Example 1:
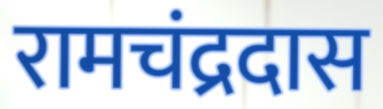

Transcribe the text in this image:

रामचंद्रदास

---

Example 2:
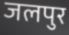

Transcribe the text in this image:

जलपुर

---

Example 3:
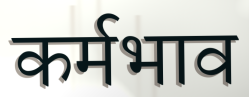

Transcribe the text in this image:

कर्मभाव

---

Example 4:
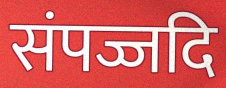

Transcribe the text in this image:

संपज्जदि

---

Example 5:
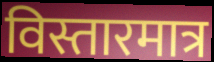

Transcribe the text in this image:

विस्तारमात्र